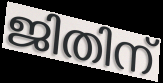
ജിതിന്